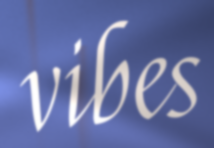
vibes